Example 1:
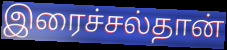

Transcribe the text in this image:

இரைச்சல்தான்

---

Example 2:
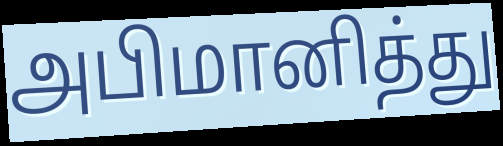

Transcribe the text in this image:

அபிமானித்து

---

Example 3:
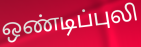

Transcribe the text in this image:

ஒண்டிப்புலி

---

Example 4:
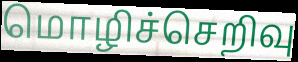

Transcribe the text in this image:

மொழிச்செறிவு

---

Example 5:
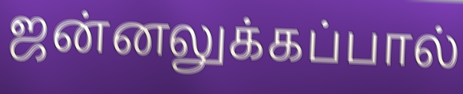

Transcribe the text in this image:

ஜன்னலுக்கப்பால்